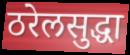
ठरेलसुद्धा